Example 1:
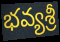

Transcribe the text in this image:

భవ్యశ్రీ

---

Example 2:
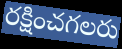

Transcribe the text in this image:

రక్షించగలరు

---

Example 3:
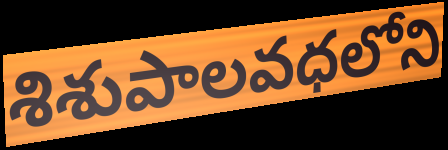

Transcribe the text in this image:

శిశుపాలవధలోని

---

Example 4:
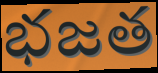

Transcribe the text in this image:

భజత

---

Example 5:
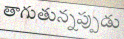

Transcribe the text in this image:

తాగుతున్నప్పుడు